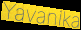
Yavanika